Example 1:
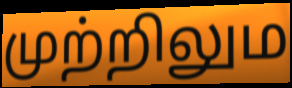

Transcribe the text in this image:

முற்றிலும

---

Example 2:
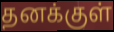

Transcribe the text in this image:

தனக்குள்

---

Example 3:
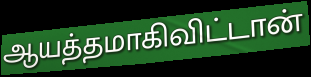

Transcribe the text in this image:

ஆயத்தமாகிவிட்டான்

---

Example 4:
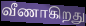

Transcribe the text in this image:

வீணாகிறது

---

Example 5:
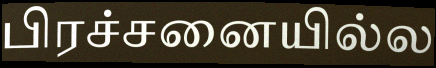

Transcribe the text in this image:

பிரச்சனையில்ல